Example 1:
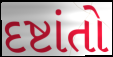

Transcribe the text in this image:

દષ્ટાંતો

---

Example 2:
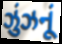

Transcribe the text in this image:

ઝુંઝનૂં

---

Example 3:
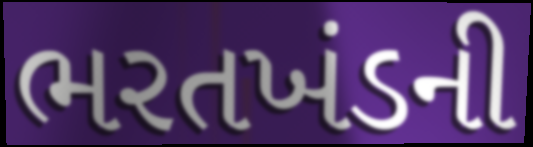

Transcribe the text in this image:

ભરતખંડની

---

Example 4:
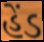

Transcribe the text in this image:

હેંડ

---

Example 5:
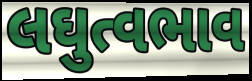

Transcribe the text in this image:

લઘુત્વભાવ